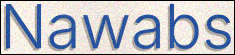
Nawabs